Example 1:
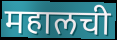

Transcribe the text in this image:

महालची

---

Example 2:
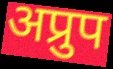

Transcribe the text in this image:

अप्रुप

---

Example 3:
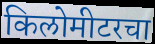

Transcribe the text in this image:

किलोमीटरचा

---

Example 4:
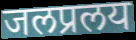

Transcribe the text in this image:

जलप्रलय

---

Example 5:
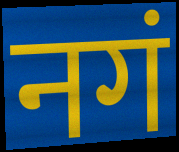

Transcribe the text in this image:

नगं